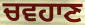
ਚਵਹਾਣ